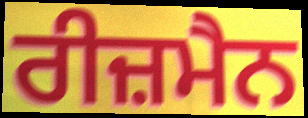
ਰੀਜ਼ਮੈਨ